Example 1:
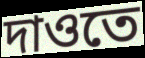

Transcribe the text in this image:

দাওতে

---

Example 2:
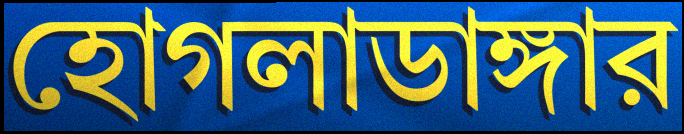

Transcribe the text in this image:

হোগলাডাঙ্গার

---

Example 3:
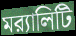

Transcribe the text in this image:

মর‍্যালিটি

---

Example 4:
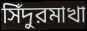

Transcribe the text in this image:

সিঁদুরমাখা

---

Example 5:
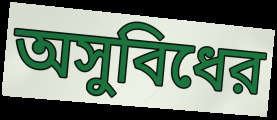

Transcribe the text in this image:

অসুবিধের